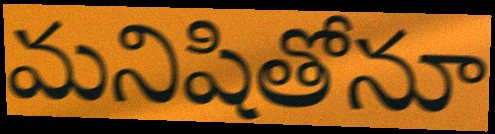
మనిషితోనూ